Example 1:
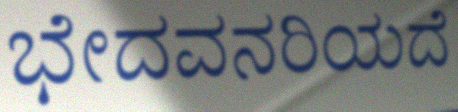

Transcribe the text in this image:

ಭೇದವನರಿಯದೆ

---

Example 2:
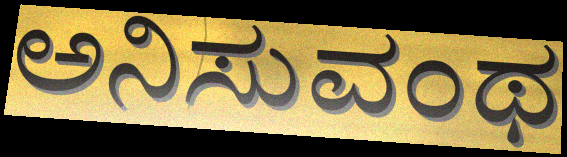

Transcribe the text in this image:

ಅನಿಸುವಂಥ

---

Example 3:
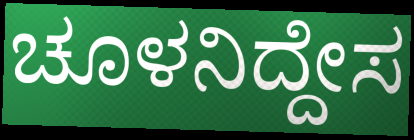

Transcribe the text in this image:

ಚೂಳನಿದ್ದೇಸ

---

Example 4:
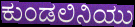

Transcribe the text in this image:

ಕುಂಡಲಿನಿಯು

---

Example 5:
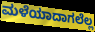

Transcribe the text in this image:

ಮಳೆಯಾದಾಗಲೆಲ್ಲ